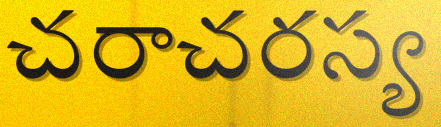
చరాచరస్య